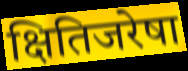
क्षितिजरेषा